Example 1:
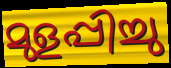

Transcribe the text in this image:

മുളപ്പിച്ചു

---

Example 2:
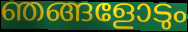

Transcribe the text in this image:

ഞങ്ങളോടും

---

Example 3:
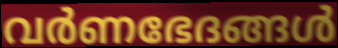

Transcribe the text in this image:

വർണഭേദങ്ങൾ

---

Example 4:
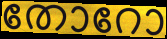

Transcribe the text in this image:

തോറോ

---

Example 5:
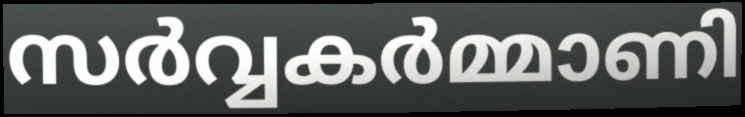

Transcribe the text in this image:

സർവ്വകർമ്മാണി